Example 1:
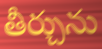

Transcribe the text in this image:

తీర్చును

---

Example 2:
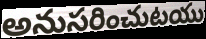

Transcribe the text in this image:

అనుసరించుటయు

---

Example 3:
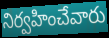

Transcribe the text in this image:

నిర్వహించేవారు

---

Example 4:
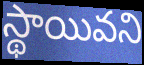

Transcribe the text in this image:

స్థాయివని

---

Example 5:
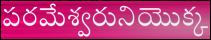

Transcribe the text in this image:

పరమేశ్వరునియొక్క